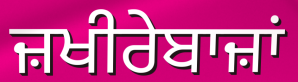
ਜ਼ਖੀਰੇਬਾਜ਼ਾਂ